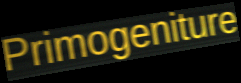
Primogeniture